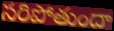
సరిపోతుందా